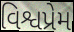
વિશ્વપ્રેમ